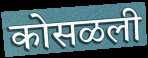
कोसळली